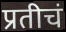
प्रतीचं